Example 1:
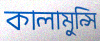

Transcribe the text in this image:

কালামুন্সি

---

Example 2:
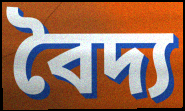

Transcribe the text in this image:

বৈদ্য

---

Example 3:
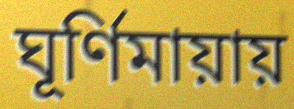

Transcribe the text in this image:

ঘূর্ণিমায়ায়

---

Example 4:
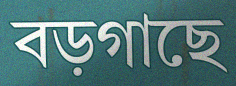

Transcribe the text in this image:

বড়গাছে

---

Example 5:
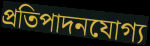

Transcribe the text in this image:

প্রতিপাদনযোগ্য